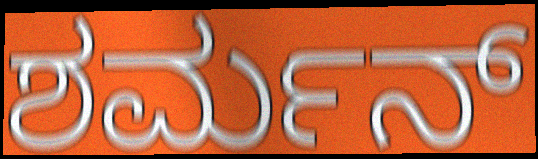
ಶರ್ಮನ್